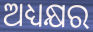
ଅଧ୍ୟକ୍ଷର